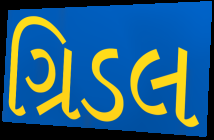
ગ્રિડલ